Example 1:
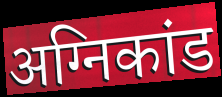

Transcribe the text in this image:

अग्‍निकांड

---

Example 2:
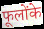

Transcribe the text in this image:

फूलोंके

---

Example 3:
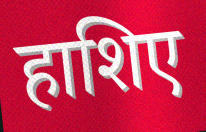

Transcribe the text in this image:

हाशिए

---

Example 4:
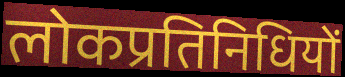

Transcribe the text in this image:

लोकप्रतिनिधियों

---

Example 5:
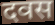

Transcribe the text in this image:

दवस